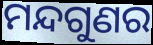
ମନ୍ଦଗୁଣର